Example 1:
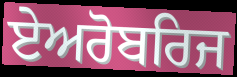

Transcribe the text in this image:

ਏਅਰੋਬਰਿਜ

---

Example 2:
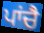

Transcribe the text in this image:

ਪਾਂਚੈ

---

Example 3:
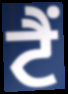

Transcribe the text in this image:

ਟੈੰ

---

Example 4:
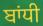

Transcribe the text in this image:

ਬਾਂਧੀ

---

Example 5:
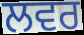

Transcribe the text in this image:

ਲਵਰ